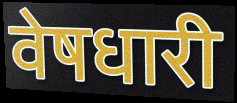
वेषधारी